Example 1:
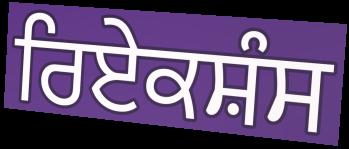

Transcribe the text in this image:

ਰਿਏਕਸ਼ੰਸ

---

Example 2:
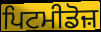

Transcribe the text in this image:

ਪਿਟਮੀਡੋਜ਼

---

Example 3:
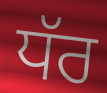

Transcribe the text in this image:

ਧੱਰ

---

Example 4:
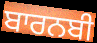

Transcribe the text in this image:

ਬਾਰਨਬੀ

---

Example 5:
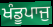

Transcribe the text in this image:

ਖੰਡੂਪਾਜੁ